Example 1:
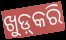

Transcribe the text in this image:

ଖୁଡ଼୍‍କରି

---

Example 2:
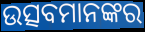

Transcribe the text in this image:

ଉତ୍ସବମାନଙ୍କର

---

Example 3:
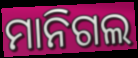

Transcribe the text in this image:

ମାନିଗଲ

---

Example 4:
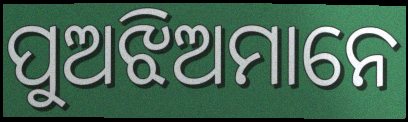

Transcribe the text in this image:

ପୁଅଝିଅମାନେ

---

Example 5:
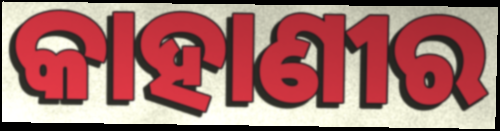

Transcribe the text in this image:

କାହାଣୀର